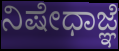
ನಿಷೇಧಾಜ್ಞೆ